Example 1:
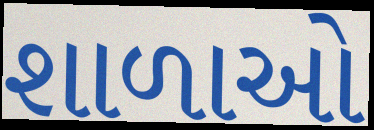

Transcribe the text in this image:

શાળાઓ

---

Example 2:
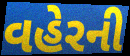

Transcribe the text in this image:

વહેરની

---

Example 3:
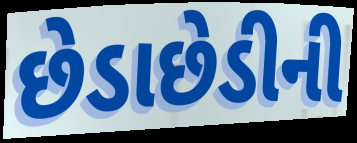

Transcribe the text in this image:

છેડાછેડીની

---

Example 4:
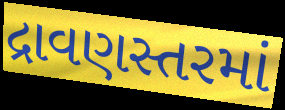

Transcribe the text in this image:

દ્રાવણસ્તરમાં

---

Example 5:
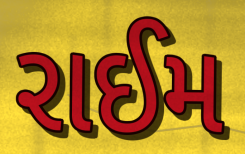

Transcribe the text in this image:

રાઈમ